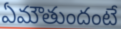
ఏమౌతుందంటే